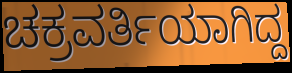
ಚಕ್ರವರ್ತಿಯಾಗಿದ್ದ